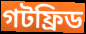
গটফ্রিড